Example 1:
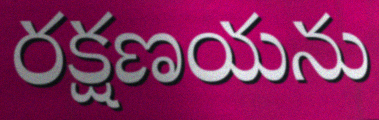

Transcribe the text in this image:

రక్షణయను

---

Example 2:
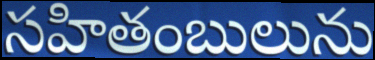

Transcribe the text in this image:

సహితంబులును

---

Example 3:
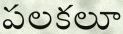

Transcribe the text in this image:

పలకలూ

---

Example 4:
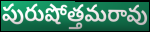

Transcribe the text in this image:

పురుషోత్తమరావు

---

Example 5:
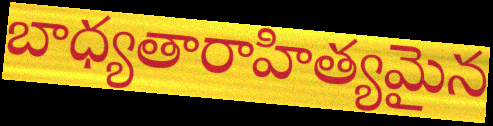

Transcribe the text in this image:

బాధ్యతారాహిత్యమైన